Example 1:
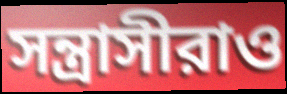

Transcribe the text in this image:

সন্ত্রাসীরাও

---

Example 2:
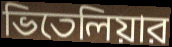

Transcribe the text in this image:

ভিতেলিয়ার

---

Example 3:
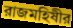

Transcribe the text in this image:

রাজমহিষীর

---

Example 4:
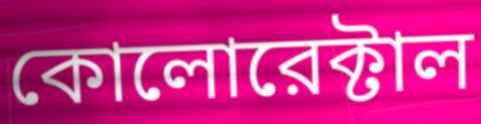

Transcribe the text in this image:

কোলোরেক্টাল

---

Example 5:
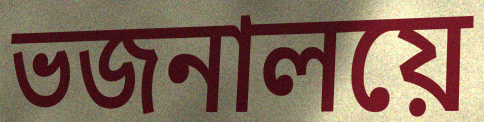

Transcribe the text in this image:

ভজনালয়ে